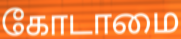
கோடாமை